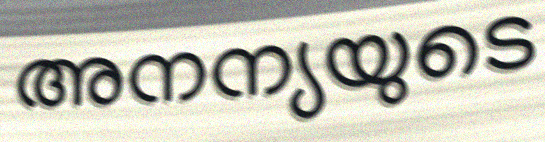
അനന്യയുടെ